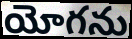
యోగను